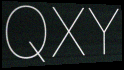
QXY